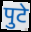
पुटे